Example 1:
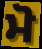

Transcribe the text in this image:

ਮੋ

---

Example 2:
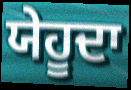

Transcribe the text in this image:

ਯੇਹੂਦਾ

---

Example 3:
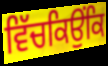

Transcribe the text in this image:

ਵਿੱਚਕਿਉਂਕਿ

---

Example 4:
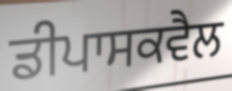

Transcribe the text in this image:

ਡੀਪਾਸਕਵੈਲ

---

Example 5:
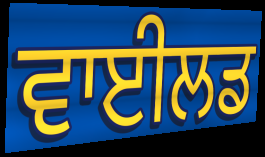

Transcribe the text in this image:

ਵਾਈਲਡ